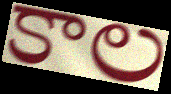
కాల